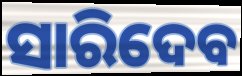
ସାରିଦେବ